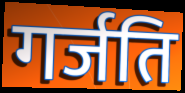
गर्जति